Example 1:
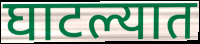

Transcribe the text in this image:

घाटल्यात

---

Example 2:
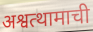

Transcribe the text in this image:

अश्वत्थामाची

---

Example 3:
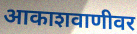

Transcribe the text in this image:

आकाशवाणीवर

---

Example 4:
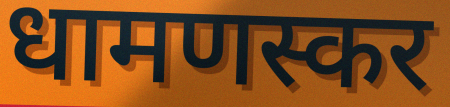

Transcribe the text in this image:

धामणस्कर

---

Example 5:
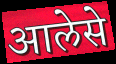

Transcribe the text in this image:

आलेसे